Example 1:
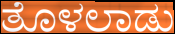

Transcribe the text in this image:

ತೊಳಲಾಡು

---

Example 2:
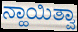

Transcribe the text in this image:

ನ್ಹಾಯಿತ್ವಾ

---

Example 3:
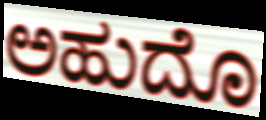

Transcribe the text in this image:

ಅಹುದೊ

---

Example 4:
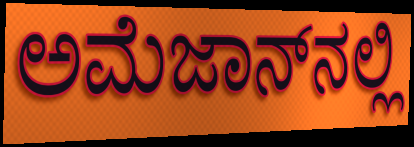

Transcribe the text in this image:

ಅಮೆಜಾನ್‌ನಲ್ಲಿ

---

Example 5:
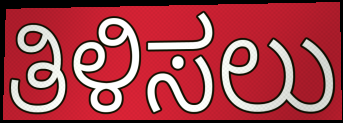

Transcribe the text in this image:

ತಿಳಿಸಲು